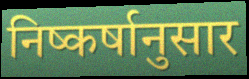
निष्कर्षानुसार